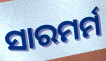
ସାରମର୍ମ